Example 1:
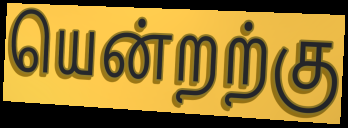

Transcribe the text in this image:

யென்றற்கு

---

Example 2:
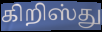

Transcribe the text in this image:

கிறிஸ்து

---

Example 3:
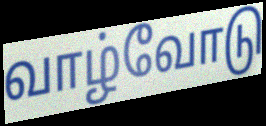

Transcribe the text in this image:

வாழ்வோடு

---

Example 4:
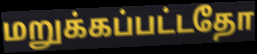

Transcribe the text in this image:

மறுக்கப்பட்டதோ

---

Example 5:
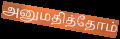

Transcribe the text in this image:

அனுமதித்தோம்